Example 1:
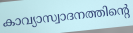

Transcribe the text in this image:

കാവ്യാസ്വാദനത്തിന്റെ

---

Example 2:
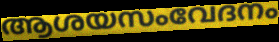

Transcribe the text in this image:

ആശയസംവേദനം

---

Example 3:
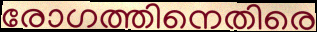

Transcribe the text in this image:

രോഗത്തിനെതിരെ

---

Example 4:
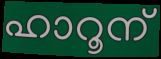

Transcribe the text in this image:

ഹാറൂന്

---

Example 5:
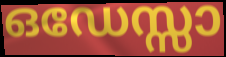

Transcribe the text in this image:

ഒഡേസ്സാ